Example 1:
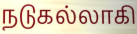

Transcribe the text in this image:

நடுகல்லாகி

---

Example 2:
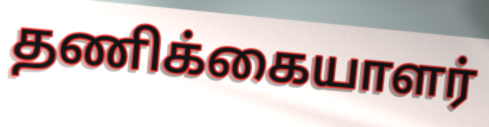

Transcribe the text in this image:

தணிக்கையாளர்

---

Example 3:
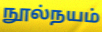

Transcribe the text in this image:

நூல்நயம்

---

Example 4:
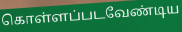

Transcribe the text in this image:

கொள்ளப்படவேண்டிய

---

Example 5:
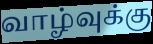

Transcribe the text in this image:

வாழ்வுக்கு